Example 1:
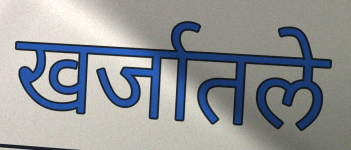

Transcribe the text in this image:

खर्जातले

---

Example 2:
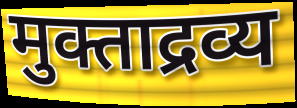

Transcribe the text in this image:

मुक्ताद्रव्य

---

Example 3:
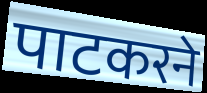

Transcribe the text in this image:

पाटकरने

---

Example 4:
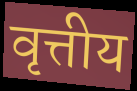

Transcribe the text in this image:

वृत्तीय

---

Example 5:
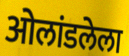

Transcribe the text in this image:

ओलांडलेला